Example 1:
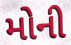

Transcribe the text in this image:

મોની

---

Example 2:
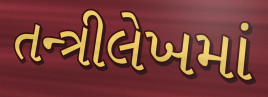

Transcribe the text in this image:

તન્ત્રીલેખમાં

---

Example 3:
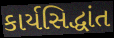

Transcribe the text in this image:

કાર્યસિદ્ધાંત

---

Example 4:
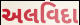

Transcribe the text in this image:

અલવિદા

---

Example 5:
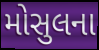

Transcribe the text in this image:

મોસુલના